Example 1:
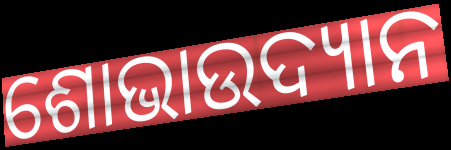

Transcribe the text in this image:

ଶୋଭାଉଦ୍ୟାନ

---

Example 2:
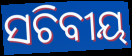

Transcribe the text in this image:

ସଚିବୀୟ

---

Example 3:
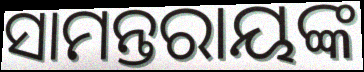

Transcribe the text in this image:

ସାମନ୍ତରାୟଙ୍କ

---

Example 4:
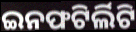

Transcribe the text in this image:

ଇନଫଟିର୍ଲିଟି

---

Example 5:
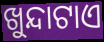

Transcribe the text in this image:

ଖୁନ୍ଦାଟାଏ